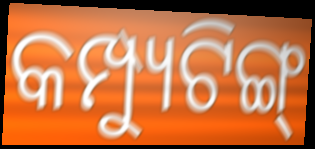
କମ୍ପ୍ୟୁଟିଙ୍ଗ୍